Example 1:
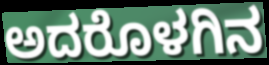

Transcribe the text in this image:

ಅದರೊಳಗಿನ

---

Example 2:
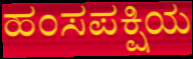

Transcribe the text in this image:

ಹಂಸಪಕ್ಷಿಯ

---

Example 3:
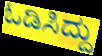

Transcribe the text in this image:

ಓಡಿಸಿದ್ದು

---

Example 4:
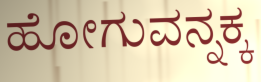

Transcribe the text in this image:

ಹೋಗುವನ್ನಕ್ಕ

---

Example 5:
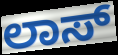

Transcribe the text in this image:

ಲಾಸ್